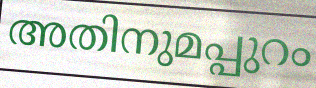
അതിനുമപ്പുറം